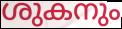
ശുകനും